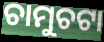
ଚାମୁଚଟା